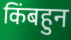
किंबहुन